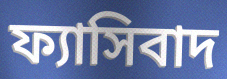
ফ্যাসিবাদ